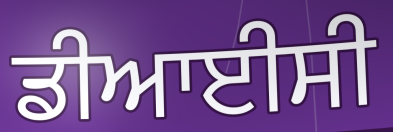
ਡੀਆਈਸੀ